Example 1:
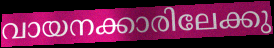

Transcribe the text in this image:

വായനക്കാരിലേക്കു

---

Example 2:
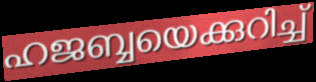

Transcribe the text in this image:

ഹജബ്ബയെക്കുറിച്ച്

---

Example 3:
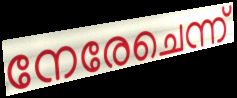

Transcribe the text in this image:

നേരേചെന്ന്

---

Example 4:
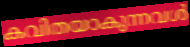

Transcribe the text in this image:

കവിതയാകുന്നവൾ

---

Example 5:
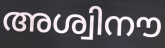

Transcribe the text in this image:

അശ്വിനൗ